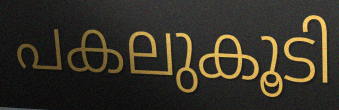
പകലുകൂടി